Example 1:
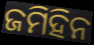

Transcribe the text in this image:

ଜମିହିନ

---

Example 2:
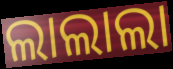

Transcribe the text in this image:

ଲାଲାଲା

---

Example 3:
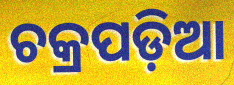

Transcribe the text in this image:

ଚକ୍ରପଡ଼ିଆ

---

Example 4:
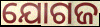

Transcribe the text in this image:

ଯୋଗଜ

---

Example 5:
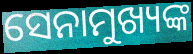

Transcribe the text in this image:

ସେନାମୁଖ୍ୟଙ୍କ